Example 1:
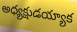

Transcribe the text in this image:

అధ్యక్షుడయ్యాక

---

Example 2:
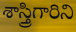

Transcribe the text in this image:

శాస్త్రిగారిని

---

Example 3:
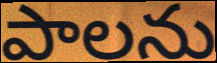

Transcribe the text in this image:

పాలను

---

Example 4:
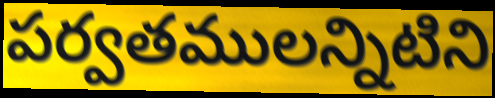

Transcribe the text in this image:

పర్వతములన్నిటిని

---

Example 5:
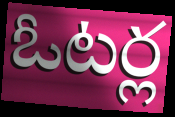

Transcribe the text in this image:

ఓటర్ల